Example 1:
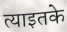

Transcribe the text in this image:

त्याइतके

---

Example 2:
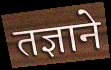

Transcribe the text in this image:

तज्ञाने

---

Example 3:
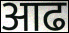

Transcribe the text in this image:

आढ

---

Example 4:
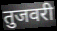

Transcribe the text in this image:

तुजवरी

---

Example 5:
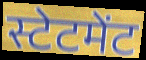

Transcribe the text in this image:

स्टेटमेंट